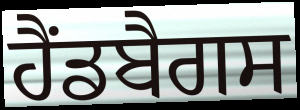
ਹੈਂਡਬੈਗਸ